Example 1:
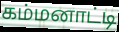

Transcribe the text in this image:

கம்மனாட்டி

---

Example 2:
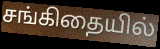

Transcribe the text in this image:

சங்கிதையில்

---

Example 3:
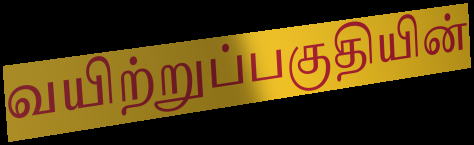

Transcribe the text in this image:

வயிற்றுப்பகுதியின்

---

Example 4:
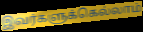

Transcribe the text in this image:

இவர்களுக்கெல்லாம்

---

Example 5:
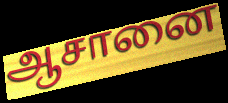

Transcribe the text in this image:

ஆசானை